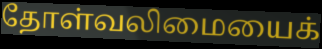
தோள்வலிமையைக்